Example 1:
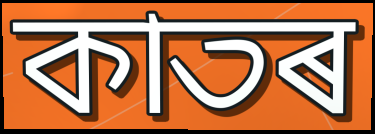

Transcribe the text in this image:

কাতৰ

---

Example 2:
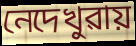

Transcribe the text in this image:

নেদেখুৱায়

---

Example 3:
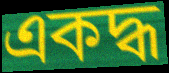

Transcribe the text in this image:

একদ্ধ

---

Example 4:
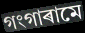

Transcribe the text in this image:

গংগাৰামে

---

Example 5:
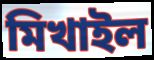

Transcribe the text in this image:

মিখাইল